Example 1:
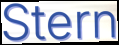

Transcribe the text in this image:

Stern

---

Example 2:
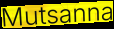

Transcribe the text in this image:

Mutsanna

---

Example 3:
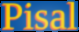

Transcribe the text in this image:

Pisal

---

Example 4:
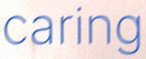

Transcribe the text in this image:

caring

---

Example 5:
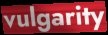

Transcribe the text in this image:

vulgarity